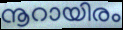
നൂറായിരം